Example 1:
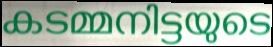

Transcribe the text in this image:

കടമ്മനിട്ടയുടെ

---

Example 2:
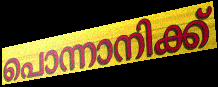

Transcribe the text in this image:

പൊന്നാനിക്ക്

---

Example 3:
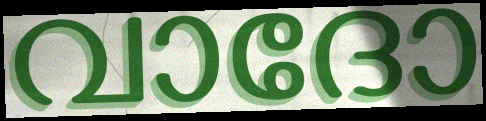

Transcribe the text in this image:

വാദോ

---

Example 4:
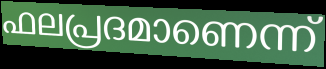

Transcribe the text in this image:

ഫലപ്രദമാണെന്ന്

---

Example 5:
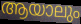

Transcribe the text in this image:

ആയാലും